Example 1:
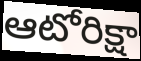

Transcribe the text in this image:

ఆటోరిక్షా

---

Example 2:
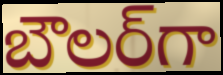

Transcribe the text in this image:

బౌలర్‌గా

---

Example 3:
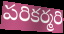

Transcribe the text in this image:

పరికర్మరి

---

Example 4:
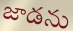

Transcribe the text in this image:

జాడను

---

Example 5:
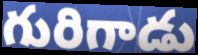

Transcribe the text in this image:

గురిగాడు